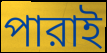
পারাই